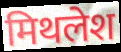
मिथलेश